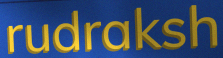
rudraksh